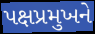
પક્ષપ્રમુખને